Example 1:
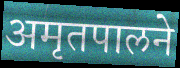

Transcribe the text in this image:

अमृतपालने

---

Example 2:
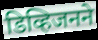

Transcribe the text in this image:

डिव्हिजनने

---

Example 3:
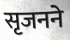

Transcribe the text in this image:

सृजनने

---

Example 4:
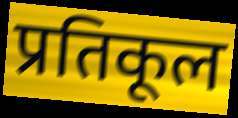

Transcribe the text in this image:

प्रतिकूल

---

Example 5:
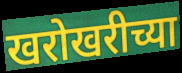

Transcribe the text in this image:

खरोखरीच्या